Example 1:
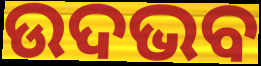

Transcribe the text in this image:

ଉଦଭବ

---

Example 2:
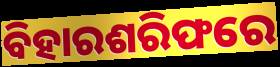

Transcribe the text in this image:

ବିହାରଶରିଫରେ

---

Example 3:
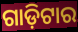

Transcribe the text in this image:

ଗାଡ଼ିଟାର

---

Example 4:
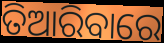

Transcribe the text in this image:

ତିଆରିବାରେ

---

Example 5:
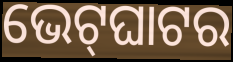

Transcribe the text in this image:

ଭେଟ୍‌ଘାଟର